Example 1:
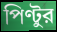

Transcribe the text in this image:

পিণ্টুর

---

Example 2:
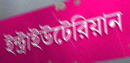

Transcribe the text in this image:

ইন্ট্রাইউটেরিয়ান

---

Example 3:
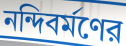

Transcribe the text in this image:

নন্দিবর্মণের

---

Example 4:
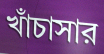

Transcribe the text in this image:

খাঁচাসার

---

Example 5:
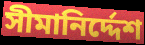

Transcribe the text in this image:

সীমানির্দ্দেশ